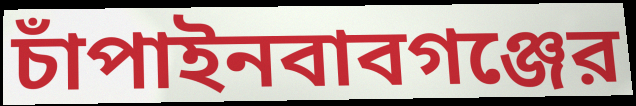
চাঁপাইনবাবগঞ্জের